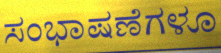
ಸಂಭಾಷಣೆಗಳೂ